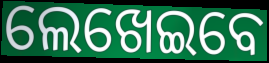
ଲେଖେଇବେ